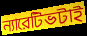
ন্যারেটিভটাই